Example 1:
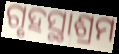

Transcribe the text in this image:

ଗୃହସ୍ଥାଶ୍ରମ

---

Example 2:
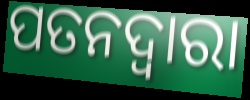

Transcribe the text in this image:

ପତନଦ୍ଵାରା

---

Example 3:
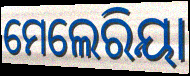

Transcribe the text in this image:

ମେଲେରିୟା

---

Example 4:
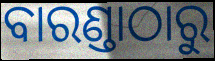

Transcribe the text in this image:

ବାରଣ୍ଡାଠାରୁ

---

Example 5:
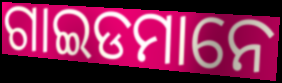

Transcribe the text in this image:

ଗାଇଡମାନେ